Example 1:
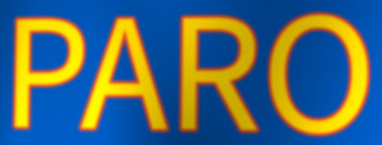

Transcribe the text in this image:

PARO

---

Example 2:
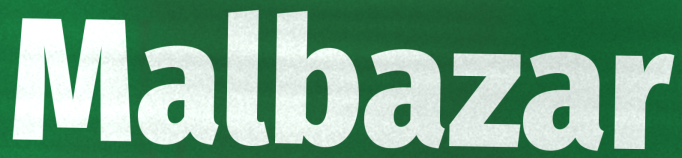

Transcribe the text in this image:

Malbazar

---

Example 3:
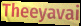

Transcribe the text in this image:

Theeyavai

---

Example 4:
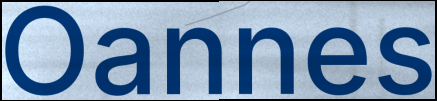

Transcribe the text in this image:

Oannes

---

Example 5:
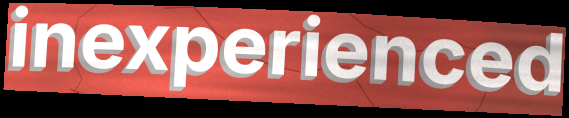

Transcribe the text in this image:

inexperienced